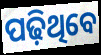
ପଢ଼ିଥିବେ